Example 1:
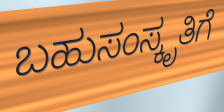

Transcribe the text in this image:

ಬಹುಸಂಸ್ಕೃತಿಗೆ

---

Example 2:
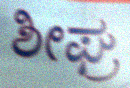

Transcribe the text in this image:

ಶೀಘ್ರ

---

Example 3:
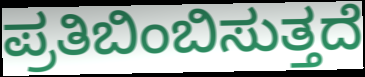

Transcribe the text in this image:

ಪ್ರತಿಬಿಂಬಿಸುತ್ತದೆ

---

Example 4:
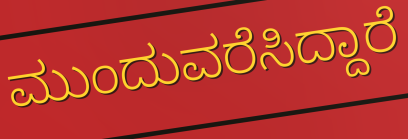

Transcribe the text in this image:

ಮುಂದುವರೆಸಿದ್ದಾರೆ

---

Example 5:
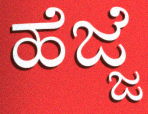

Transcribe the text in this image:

ಹೆಜ್ಜೆ